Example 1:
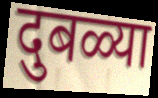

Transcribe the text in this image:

दुबळ्या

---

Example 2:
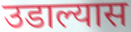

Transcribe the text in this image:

उडाल्यास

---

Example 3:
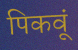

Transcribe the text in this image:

पिकवूं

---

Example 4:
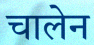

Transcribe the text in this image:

चालेन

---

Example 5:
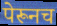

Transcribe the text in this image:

पेरूनच